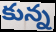
కున్న